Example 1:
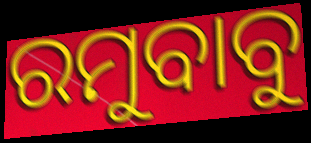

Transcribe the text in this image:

ରମୁବାବୁ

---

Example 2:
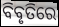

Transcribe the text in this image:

ବିବୃତିରେ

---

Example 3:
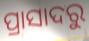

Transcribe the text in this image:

ପ୍ରାସାଦରୁ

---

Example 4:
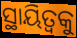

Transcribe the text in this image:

ସ୍ଥାୟିତ୍ୱକୁ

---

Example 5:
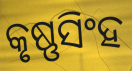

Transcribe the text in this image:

କୃଷ୍ଣସିଂହ